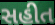
સહીત